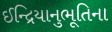
ઈન્દ્રિયાનુભૂતિના